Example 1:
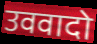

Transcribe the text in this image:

उववादो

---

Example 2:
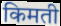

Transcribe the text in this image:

किमती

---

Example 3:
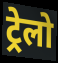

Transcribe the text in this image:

ट्रेलो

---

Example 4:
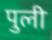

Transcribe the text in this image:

पुली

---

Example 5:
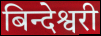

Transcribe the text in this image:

बिन्देश्वरी